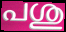
പശു